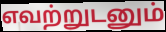
எவற்றுடனும்